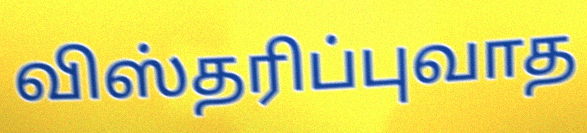
விஸ்தரிப்புவாத